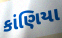
કાંણિયા